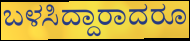
ಬಳಸಿದ್ದಾರಾದರೂ